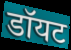
डॉयट